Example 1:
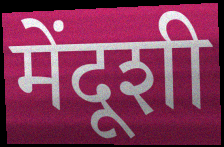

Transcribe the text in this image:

मेंदूशी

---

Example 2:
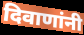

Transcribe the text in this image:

दिवाणांनी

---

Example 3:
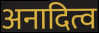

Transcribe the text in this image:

अनादित्व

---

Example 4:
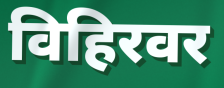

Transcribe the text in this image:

विहिरवर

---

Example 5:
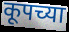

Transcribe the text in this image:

कूपच्या